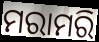
ମରାମରି